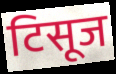
टिसूज